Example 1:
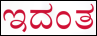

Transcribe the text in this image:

ಇದಂತ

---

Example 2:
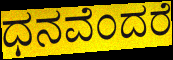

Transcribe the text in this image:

ಧನವೆಂದರೆ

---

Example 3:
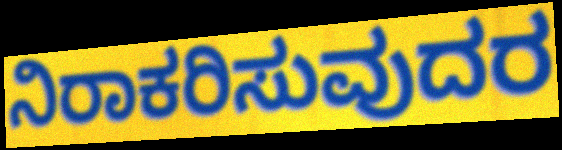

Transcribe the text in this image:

ನಿರಾಕರಿಸುವುದರ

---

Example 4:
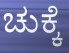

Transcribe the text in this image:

ಚುಕ್ಕೆ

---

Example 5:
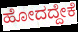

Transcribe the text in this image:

ಹೋದದ್ದೇಕೆ